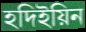
হদিইয়িন